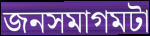
জনসমাগমটা